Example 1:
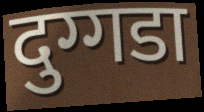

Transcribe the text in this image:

दुग्गडा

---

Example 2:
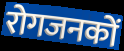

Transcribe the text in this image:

रोगजनकों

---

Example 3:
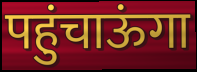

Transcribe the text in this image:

पहुंचाऊंगा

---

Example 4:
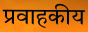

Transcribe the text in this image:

प्रवाहकीय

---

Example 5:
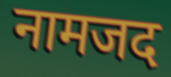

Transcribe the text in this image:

नामजद